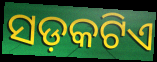
ସଡ଼କଟିଏ